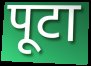
पूटा